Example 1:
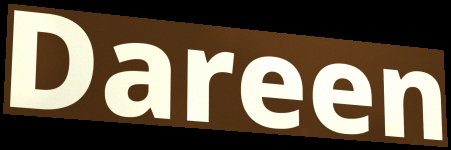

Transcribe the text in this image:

Dareen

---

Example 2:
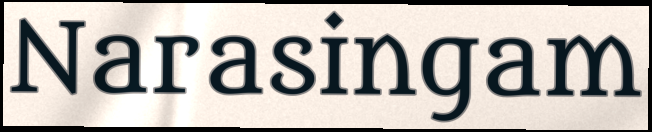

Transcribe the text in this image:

Narasingam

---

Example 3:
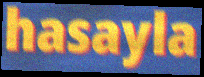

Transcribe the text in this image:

hasayla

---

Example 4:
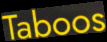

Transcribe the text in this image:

Taboos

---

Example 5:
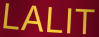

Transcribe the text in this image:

LALIT